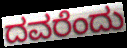
ದವರೆಂದು